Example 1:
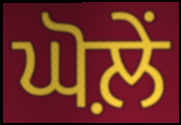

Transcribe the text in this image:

ਘੋਲ਼ੇਂ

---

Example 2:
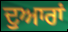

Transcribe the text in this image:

ਦੁਆਰਾਂ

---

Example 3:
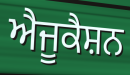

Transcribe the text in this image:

ਐਜੂਕੈਸ਼ਨ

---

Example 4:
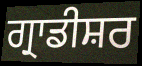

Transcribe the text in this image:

ਗ੍ਰਾਡੀਸ਼ਰ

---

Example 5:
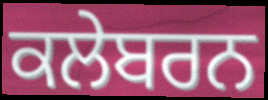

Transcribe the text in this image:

ਕਲੇਬਰਨ